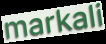
markali